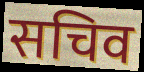
सचिव